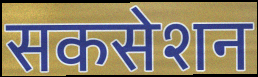
सकसेशन